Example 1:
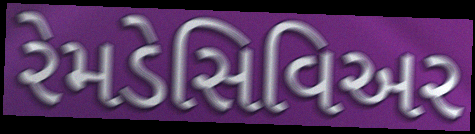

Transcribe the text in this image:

રેમડેસિવિઅર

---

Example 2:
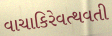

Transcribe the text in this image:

વાચાકિરેવત્થવતી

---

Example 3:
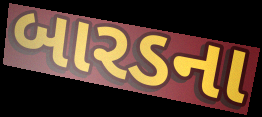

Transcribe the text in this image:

બારડના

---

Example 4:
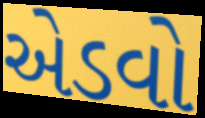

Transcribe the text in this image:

એડવો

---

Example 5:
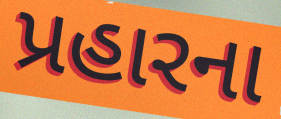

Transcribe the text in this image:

પ્રહારના